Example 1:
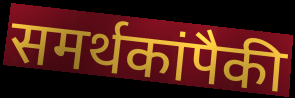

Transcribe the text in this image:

समर्थकांपैकी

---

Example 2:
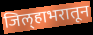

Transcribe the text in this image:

जिल्हाभरातून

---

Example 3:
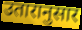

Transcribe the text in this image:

उतारानुसार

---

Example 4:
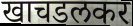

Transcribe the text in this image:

खाचडलकर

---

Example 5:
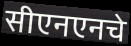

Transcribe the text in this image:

सीएनएनचे